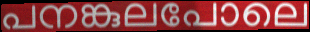
പനങ്കുലപോലെ